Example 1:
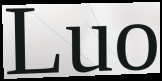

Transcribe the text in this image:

Luo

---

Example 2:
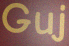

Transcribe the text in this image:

Guj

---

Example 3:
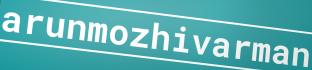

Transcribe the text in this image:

arunmozhivarman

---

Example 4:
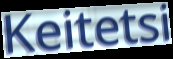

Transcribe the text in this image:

Keitetsi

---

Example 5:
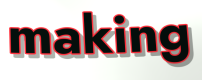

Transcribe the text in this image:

making